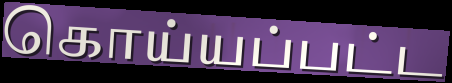
கொய்யப்பட்ட